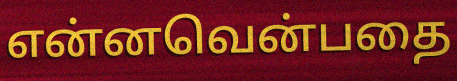
என்னவென்பதை